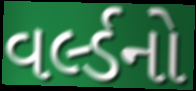
વર્લ્ડનો